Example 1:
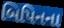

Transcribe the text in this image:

બિપિનના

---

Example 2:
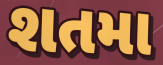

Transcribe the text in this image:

શતમા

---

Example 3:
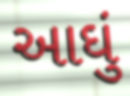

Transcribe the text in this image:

આઘું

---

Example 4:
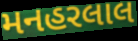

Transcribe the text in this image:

મનહરલાલ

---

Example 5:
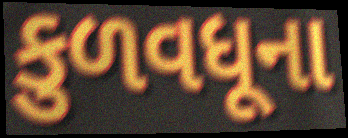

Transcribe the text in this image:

કુળવધૂના